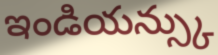
ఇండియన్స్కు